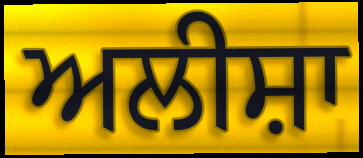
ਅਲੀਸ਼ਾ